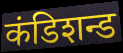
कंडिशन्ड